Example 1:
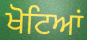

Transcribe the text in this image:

ਖੋਟਿਆਂ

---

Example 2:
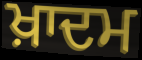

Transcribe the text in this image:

ਖ਼ਾਦਮ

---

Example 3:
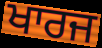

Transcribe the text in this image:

ਖਾਰਜ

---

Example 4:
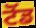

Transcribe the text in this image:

ਟੋਂਡ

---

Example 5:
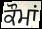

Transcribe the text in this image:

ਕੌਮਾਂ